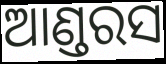
ଆଣ୍ଡରସ